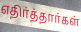
எதிர்த்தார்கள்